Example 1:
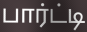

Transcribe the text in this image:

பார்ட்டி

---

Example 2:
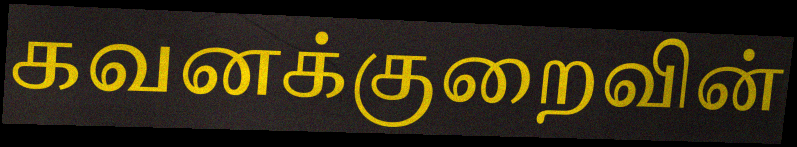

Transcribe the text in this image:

கவனக்குறைவின்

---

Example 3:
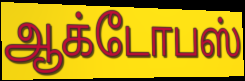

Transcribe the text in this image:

ஆக்டோபஸ்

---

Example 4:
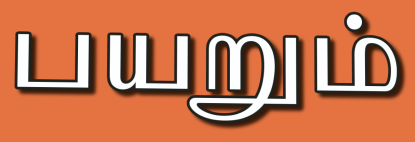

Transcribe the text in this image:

பயறும்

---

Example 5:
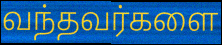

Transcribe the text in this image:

வந்தவர்களை